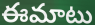
ఈమాటు